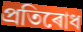
প্ৰতিৰোধ